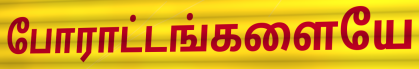
போராட்டங்களையே